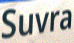
Suvra